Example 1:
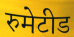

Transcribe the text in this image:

रुमेटीड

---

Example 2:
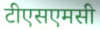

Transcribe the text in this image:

टीएसएमसी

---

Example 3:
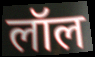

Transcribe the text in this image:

लॉल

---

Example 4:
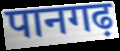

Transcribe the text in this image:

पानगढ़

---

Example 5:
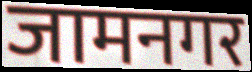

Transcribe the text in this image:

जामनगर